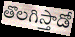
తొలగిస్తాడో